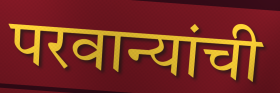
परवान्यांची